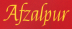
Afzalpur